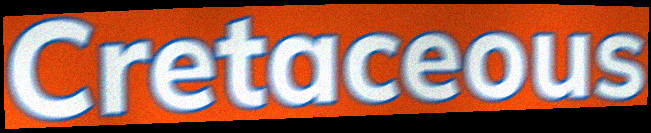
Cretaceous